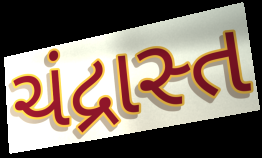
ચંદ્રાસ્ત